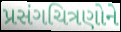
પ્રસંગચિત્રણોને